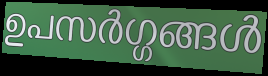
ഉപസർഗ്ഗങ്ങൾ